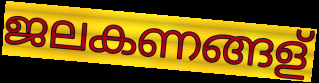
ജലകണങ്ങള്